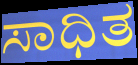
ಸಾಧಿತ